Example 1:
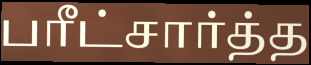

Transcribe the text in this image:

பரீட்சார்த்த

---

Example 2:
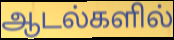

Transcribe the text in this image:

ஆடல்களில்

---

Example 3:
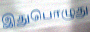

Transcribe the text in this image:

இதுபொழுது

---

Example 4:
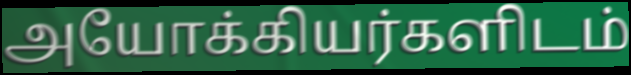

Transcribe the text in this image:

அயோக்கியர்களிடம்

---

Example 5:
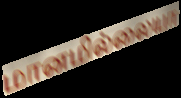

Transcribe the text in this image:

மானமில்லையா